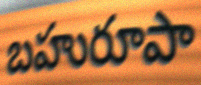
బహురూపా